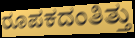
ರೂಪಕದಂತಿತ್ತು